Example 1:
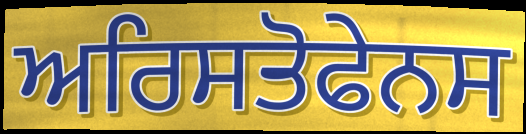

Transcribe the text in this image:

ਅਰਿਸਤੋਫੇਨਸ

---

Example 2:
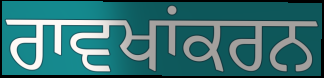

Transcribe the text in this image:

ਰਾਵਖਾਂਕਰਨ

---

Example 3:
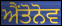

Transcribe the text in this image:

ਐਂਤੋਨੋਵ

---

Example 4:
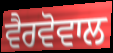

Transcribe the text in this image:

ਵੈਰਵੋਵਾਲ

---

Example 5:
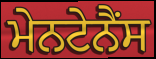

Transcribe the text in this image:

ਮੇਨਟੇਨੈਂਸ